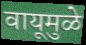
वायूमुळे